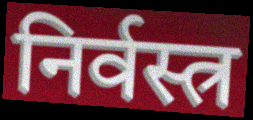
निर्वस्‍त्र